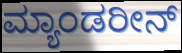
ಮ್ಯಾಂಡರೀನ್